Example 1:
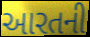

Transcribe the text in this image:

આરતની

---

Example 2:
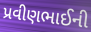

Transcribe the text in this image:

પ્રવીણભાઈની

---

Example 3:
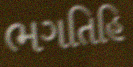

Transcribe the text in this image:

ભગતિહિ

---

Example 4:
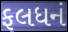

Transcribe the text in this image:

ફલધનં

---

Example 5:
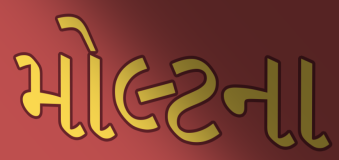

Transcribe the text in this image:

મોલ્ટના